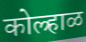
कोल्हाळ